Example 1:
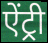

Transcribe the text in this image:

ऐंट्री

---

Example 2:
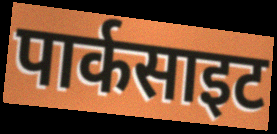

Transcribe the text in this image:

पार्कसाइट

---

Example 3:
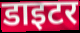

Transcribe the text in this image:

डाइटर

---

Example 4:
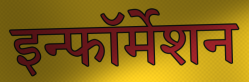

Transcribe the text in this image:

इन्फॉर्मेशन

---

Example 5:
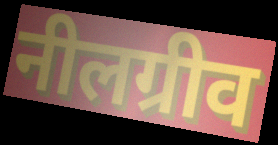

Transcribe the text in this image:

नीलग्रीव